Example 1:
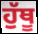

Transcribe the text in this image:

ਹੁੱਥੂ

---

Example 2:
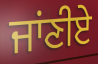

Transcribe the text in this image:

ਜਾਂਣੀਏ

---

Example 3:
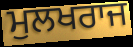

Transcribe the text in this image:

ਮੁਲਖਰਾਜ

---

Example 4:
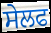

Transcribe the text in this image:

ਸੇਲਫ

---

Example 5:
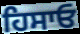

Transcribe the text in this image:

ਹਿਸਾਓ